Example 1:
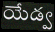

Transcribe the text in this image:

యేడ్వ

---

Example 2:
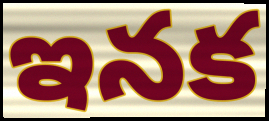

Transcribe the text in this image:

ఇనక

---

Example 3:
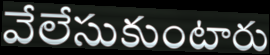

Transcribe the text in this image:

వేలేసుకుంటారు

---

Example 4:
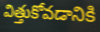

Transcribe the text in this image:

విత్తుకోవడానికి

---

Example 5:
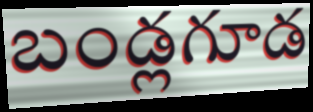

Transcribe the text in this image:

బండ్లగూడ